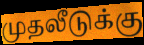
முதலீடுக்கு